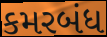
કમરબંધ